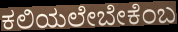
ಕಲಿಯಲೇಬೇಕೆಂಬ